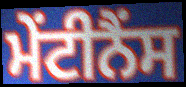
ਮੇਂਟੀਨੈਂਸ